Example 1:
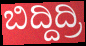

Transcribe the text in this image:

ಬಿದ್ದಿದ್ರಿ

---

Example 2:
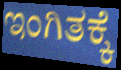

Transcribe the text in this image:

ಇಂಗಿತಕ್ಕೆ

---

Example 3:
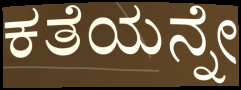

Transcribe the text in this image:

ಕತೆಯನ್ನೇ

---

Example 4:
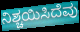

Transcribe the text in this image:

ನಿಶ್ಚಯಿಸಿದೆವು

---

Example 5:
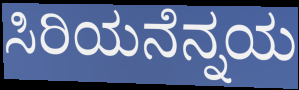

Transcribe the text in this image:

ಸಿರಿಯನೆನ್ನಯ